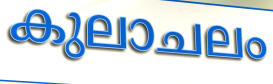
കുലാചലം